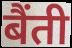
बैंती